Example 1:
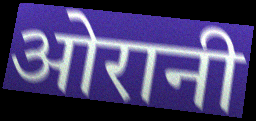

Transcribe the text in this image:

ओरानी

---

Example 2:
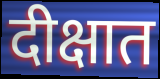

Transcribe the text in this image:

दीक्षात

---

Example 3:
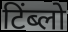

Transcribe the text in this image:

टिंब्लो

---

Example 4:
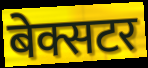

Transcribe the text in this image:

बेक्सटर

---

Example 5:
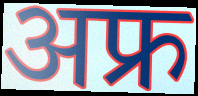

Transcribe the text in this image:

अफ्र